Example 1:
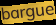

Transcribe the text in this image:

bargue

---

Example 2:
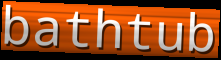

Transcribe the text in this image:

bathtub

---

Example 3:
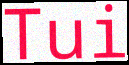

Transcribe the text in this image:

Tui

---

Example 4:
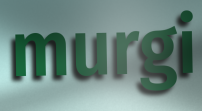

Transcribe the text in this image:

murgi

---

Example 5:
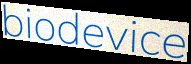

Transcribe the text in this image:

biodevice